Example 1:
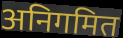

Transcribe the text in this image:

अनिगमित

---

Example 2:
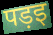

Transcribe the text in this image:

पड़इ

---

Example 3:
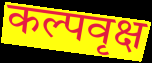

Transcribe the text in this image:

कल्‍पवृक्ष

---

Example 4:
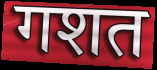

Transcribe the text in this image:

गशत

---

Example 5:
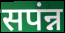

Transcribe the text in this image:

सपंन्न